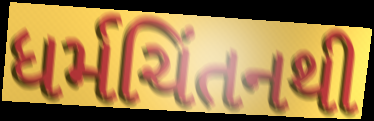
ધર્મચિંતનથી